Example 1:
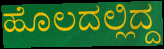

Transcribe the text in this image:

ಹೊಲದಲ್ಲಿದ್ದ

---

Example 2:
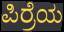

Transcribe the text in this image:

ಪಿರ್ರೆಯ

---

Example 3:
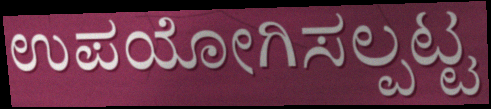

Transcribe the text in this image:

ಉಪಯೋಗಿಸಲ್ಪಟ್ಟ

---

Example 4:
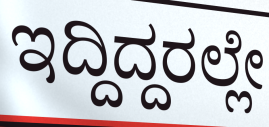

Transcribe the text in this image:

ಇದ್ದಿದ್ದರಲ್ಲೇ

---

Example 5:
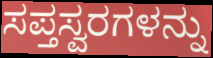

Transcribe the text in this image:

ಸಪ್ತಸ್ವರಗಳನ್ನು